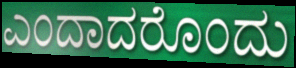
ಎಂದಾದರೊಂದು